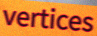
vertices